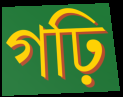
গঢ়ি